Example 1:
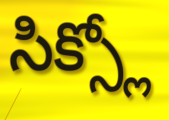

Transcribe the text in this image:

సిక్స్లో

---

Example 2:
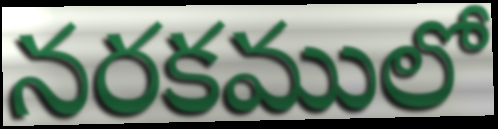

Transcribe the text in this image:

నరకములో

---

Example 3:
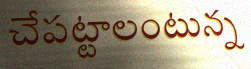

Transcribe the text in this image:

చేపట్టాలంటున్న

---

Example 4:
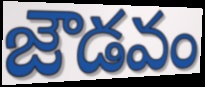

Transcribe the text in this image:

జౌడవం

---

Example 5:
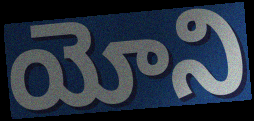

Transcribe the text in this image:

యోని